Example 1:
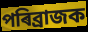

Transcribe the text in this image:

পৰিব্ৰাজক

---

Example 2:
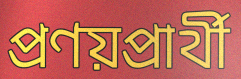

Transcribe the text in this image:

প্ৰণয়প্ৰাৰ্থী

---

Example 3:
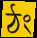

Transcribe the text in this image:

ঠং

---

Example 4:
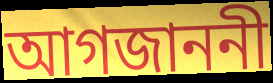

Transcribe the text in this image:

আগজাননী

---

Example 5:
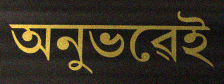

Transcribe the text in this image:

অনুভৱেই